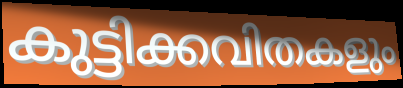
കുട്ടിക്കവിതകളും